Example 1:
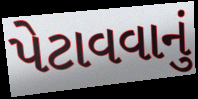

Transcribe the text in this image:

પેટાવવાનું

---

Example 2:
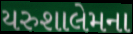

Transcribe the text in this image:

યરુશાલેમના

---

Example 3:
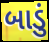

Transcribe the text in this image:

બાડું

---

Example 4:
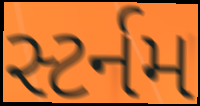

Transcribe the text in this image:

સ્ટર્નમ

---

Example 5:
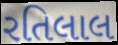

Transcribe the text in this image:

રતિલાલ